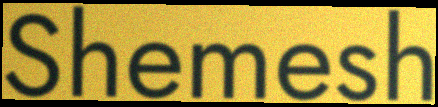
Shemesh